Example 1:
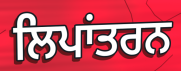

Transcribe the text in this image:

ਲਿਪਾਂਤਰਨ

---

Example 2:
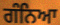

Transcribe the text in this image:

ਗੰਨਿਆ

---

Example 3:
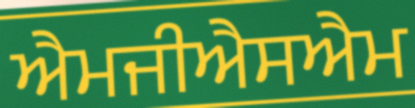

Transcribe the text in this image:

ਐਮਜੀਐਸਐਮ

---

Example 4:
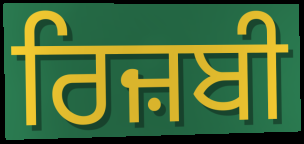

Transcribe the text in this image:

ਰਿਜ਼ਬੀ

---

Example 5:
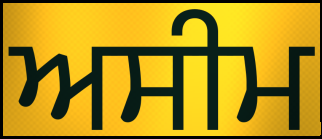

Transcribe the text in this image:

ਅਸੀਮ